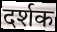
दर्शक